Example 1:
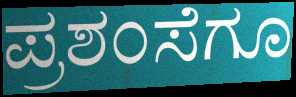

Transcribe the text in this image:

ಪ್ರಶಂಸೆಗೂ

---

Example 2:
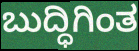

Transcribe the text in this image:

ಬುದ್ಧಿಗಿಂತ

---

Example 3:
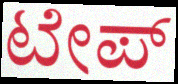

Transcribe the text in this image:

ಟೇಪ್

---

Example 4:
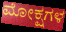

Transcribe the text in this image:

ಮೋಕ್ಷಗಳ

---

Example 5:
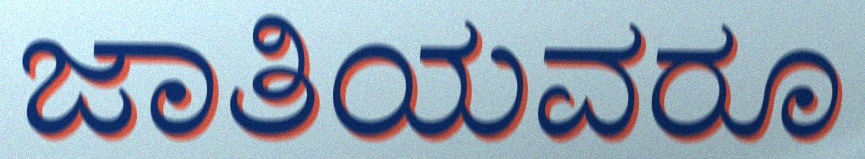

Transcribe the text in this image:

ಜಾತಿಯವರೂ